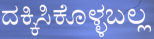
ದಕ್ಕಿಸಿಕೊಳ್ಳಬಲ್ಲ